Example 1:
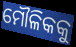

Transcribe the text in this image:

ମୌଳିକକୁ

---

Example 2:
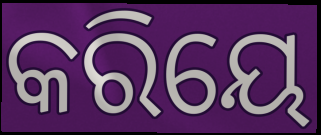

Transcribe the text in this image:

କରିୟେ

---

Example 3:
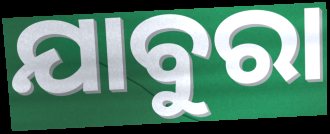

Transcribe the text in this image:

ଯାବୁରା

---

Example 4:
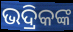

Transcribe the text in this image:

ଭଦ୍ରିକଙ୍କ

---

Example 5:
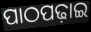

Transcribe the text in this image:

ପାଠପଢ଼ାଇ